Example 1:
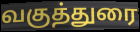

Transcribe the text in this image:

வகுத்துரை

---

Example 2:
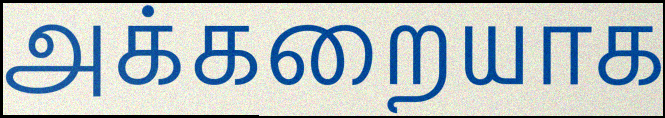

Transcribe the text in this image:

அக்கறையாக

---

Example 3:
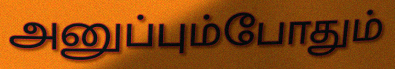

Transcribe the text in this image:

அனுப்பும்போதும்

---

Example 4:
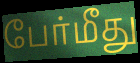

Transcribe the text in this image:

பேர்மீது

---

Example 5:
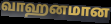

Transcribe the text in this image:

வாஹனமான